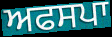
ਅਫਸਪਾ